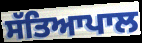
ਸੱਤਿਆਪਾਲ